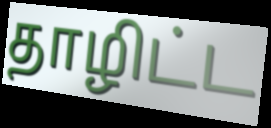
தாழிட்ட